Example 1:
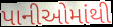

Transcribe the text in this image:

પાનીઓમાંથી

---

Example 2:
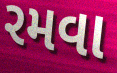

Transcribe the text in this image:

રમવા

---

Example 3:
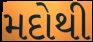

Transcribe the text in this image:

મદોથી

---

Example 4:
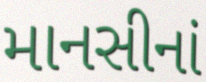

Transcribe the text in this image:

માનસીનાં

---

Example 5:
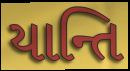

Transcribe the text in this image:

યાન્તિ